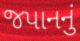
જપાનનું